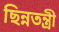
ছিন্নতন্ত্রী